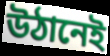
উঠানেই